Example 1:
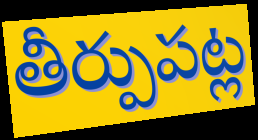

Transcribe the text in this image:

తీర్పుపట్ల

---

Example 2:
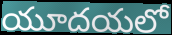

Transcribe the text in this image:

యూదయలో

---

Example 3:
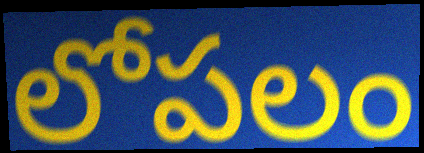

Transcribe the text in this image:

లోపలం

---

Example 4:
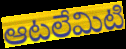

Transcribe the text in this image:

ఆటలేమిటి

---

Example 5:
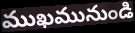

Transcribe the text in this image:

ముఖమునుండి